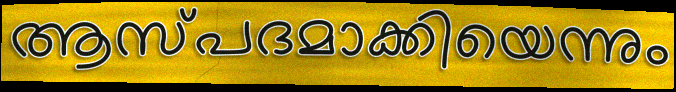
ആസ്പദമാക്കിയെന്നും